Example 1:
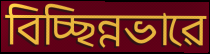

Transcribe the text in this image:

বিচ্ছিন্নভাৱে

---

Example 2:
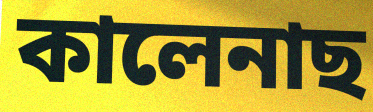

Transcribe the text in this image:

কালেনাছ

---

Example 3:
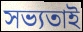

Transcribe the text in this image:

সভ্যতাই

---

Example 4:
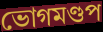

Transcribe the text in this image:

ভোগমণ্ডপ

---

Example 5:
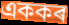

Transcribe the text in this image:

এককৰ